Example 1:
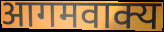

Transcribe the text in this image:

आगमवाक्य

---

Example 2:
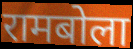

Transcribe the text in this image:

रामबोला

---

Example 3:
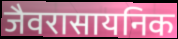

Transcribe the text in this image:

जैवरासायनिक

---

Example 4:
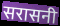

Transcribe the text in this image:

सरासनी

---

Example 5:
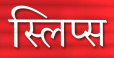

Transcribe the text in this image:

स्लिप्स